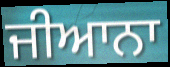
ਜੀਆਨਾ